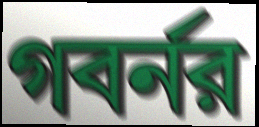
গবর্নর